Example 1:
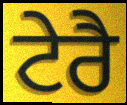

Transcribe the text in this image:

ਟੇਰੈ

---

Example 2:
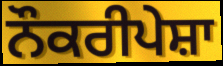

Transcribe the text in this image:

ਨੌਕਰੀਪੇਸ਼ਾ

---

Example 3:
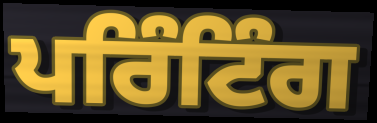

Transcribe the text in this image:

ਪਰਿੰਟਿੰਗ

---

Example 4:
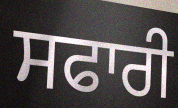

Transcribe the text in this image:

ਸਫਾਰੀ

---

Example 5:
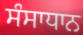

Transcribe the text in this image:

ਸੰਸਾਧਾਨ